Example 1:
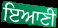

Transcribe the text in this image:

ਇਆਣੀ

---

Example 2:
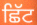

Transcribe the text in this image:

ਛਿੱਟ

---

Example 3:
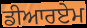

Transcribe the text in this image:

ਡੀਆਰਏਮ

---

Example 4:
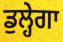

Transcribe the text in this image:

ਡੁਲ੍ਹੇਗਾ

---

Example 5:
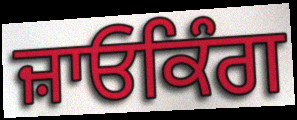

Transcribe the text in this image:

ਜ਼ਾਓਕਿੰਗ